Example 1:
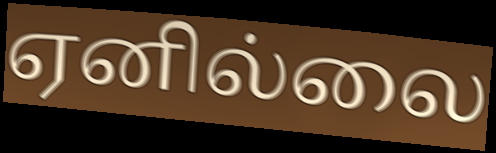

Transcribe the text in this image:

ஏனில்லை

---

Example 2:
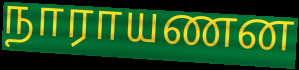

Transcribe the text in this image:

நாராயணன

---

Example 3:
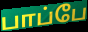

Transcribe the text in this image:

பாப்பே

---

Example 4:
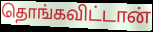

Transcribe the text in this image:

தொங்கவிட்டான்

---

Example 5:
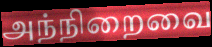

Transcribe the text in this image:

அந்நிறைவை